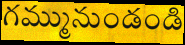
గమ్మునుండండి